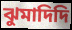
ঝুমাদিদি